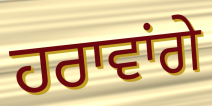
ਹਰਾਵਾਂਗੇ